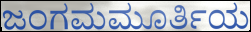
ಜಂಗಮಮೂರ್ತಿಯ